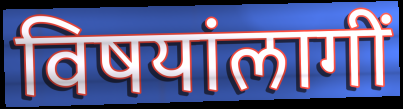
विषयांलागीं